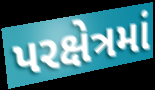
પરક્ષેત્રમાં